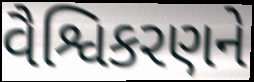
વૈશ્વિકરણને